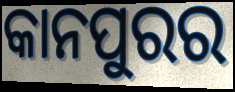
କାନପୁରର